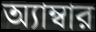
অ্যাম্বার